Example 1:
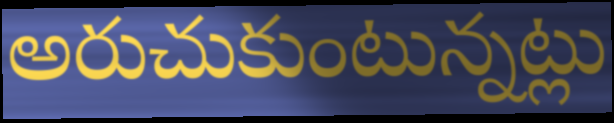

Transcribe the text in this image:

అరుచుకుంటున్నట్లు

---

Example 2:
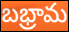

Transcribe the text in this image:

బభ్రామ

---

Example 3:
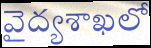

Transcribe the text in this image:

వైద్యశాఖలో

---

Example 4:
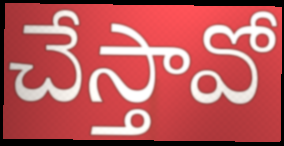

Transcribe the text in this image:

చేస్తావో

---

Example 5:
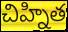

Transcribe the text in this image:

చిహ్నిత